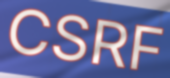
CSRF